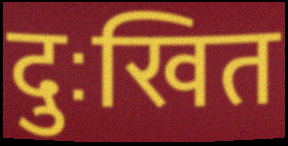
दुःखित